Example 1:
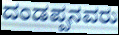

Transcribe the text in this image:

ದಂಡಪ್ಪನವರು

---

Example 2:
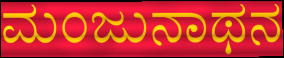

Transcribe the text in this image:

ಮಂಜುನಾಥನ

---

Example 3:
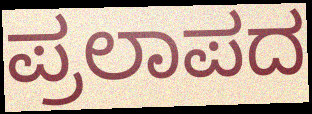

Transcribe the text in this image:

ಪ್ರಲಾಪದ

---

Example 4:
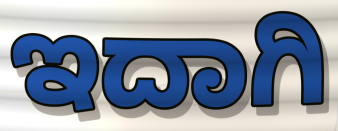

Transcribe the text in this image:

ಇದಾಗಿ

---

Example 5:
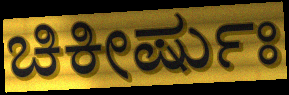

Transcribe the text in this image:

ಚಿಕೀರ್ಷುಃ